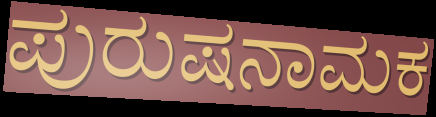
ಪುರುಷನಾಮಕ